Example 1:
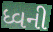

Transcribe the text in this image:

ધ્વની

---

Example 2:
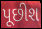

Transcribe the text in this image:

પૂછીશ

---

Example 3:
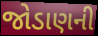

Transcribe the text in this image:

જોડાણની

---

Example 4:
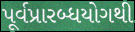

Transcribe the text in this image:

પૂર્વપ્રારબ્ધયોગથી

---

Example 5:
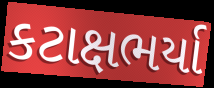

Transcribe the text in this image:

કટાક્ષભર્યા